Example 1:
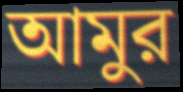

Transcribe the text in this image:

আমুর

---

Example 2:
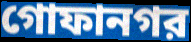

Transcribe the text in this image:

গোফানগর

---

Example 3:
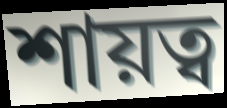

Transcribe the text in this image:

শায়ত্ব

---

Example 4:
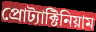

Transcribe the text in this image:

প্রোট্যাক্টিনিয়াম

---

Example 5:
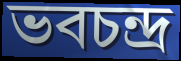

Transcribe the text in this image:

ভবচন্দ্র